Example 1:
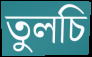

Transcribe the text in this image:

তুলচি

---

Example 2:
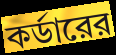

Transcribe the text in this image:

কর্ডারের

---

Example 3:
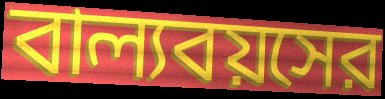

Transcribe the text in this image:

বাল্যবয়সের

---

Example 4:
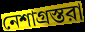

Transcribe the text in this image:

নেশাগ্রস্তরা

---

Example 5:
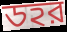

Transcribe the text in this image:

ডহর